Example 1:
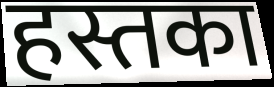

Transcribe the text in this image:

हस्तका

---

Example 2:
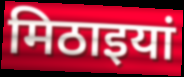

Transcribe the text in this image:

मिठाइयां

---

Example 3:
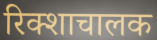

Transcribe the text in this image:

रिक्शाचालक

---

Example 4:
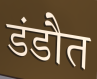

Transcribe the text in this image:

डंडौत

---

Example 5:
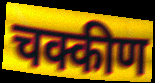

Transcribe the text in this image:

चक्कीण